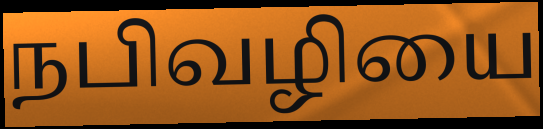
நபிவழியை